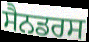
ਸੈਨਡਰਸ